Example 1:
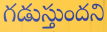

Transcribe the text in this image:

గడుస్తుందని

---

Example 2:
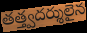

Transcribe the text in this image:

తత్త్వదర్శులైన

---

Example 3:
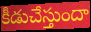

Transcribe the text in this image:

కీడుచేస్తుందా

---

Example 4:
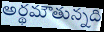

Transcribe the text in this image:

అర్థమౌతున్నది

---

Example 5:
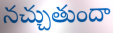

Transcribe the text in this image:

నచ్చుతుందా